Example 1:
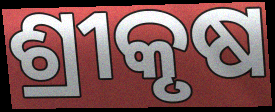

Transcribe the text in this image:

ଶ୍ରୀକୃଷ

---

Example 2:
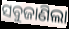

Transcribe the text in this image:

ସବୁଜାଣିଲା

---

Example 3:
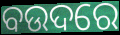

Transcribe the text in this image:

ବଉଦରେ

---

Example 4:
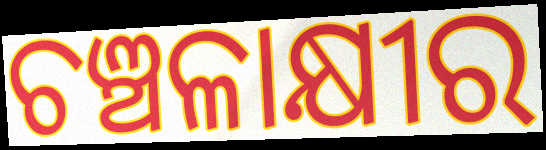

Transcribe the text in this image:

ଚଞ୍ଚଳାକ୍ଷୀର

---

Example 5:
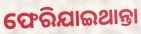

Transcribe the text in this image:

ଫେରିଯାଇଥାନ୍ତା